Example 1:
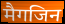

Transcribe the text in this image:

मैगजिन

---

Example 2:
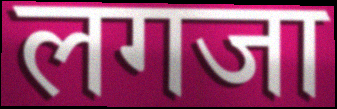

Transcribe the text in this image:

लगजा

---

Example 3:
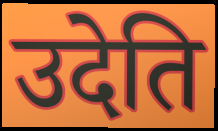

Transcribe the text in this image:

उदेति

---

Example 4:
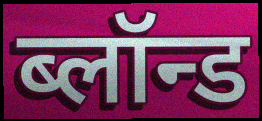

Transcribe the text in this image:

ब्लॉन्ड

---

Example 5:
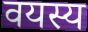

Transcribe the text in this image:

वयस्य